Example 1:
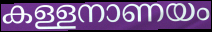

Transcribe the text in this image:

കള്ളനാണയം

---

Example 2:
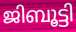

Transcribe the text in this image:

ജിബൂട്ടി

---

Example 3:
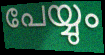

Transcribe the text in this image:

പേയ്യും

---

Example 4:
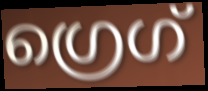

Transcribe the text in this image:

ഗ്രെഗ്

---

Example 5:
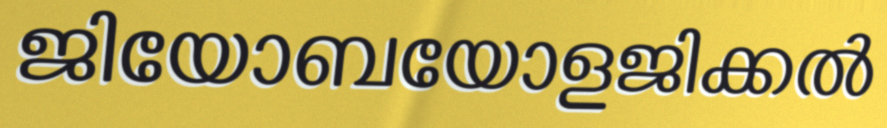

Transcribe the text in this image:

ജിയോബയോളജിക്കൽ